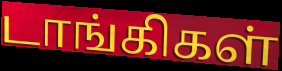
டாங்கிகள்